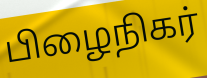
பிழைநிகர்